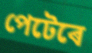
পেটেৰে